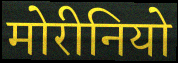
मोरीनियो